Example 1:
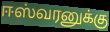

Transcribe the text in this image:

ஈஸ்வரனுக்கு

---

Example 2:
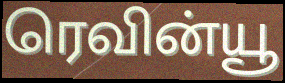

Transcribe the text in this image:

ரெவின்யூ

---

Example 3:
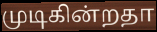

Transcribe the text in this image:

முடிகின்றதா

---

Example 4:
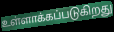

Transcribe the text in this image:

உள்ளாக்கப்படுகிறது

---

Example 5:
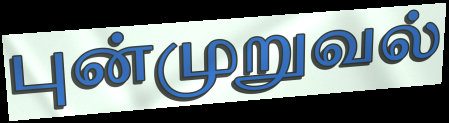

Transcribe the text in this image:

புன்முறுவல்